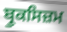
ਬ੍ਰੁਕਸਿਜ਼ਮ